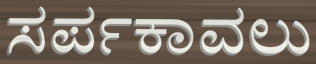
ಸರ್ಪಕಾವಲು